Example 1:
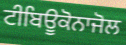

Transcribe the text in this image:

ਟੀਬਿਊਕੋਨਾਜੋਲ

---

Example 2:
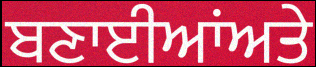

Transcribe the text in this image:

ਬਣਾਈਆਂਅਤੇ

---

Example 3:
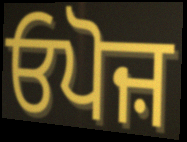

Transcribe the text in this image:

ਓਪੋਜ਼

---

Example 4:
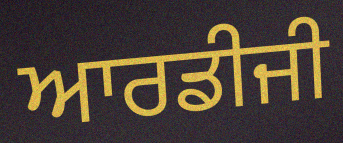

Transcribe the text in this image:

ਆਰਡੀਜੀ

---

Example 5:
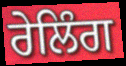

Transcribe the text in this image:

ਰੇਲਿੰਗ